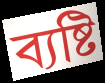
ব্যষ্টি